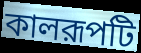
কালরূপটি